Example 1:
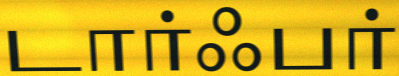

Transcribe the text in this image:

டார்ஃபர்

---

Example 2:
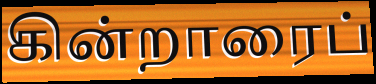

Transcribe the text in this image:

கின்றாரைப்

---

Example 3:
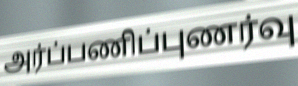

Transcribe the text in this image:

அர்ப்பணிப்புணர்வு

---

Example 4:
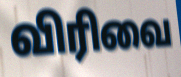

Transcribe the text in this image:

விரிவை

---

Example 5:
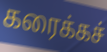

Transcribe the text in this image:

கரைக்கச்